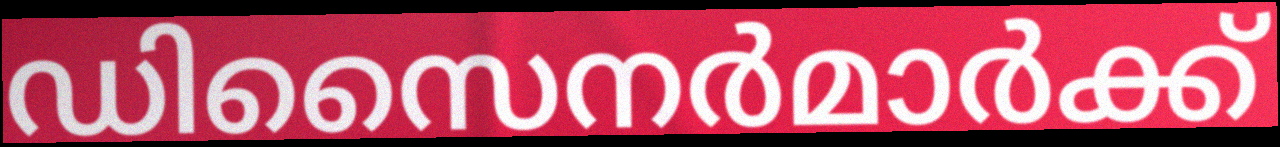
ഡിസൈനർമാർക്ക്